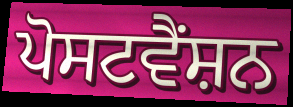
ਪੋਸਟਵੈਂਸ਼ਨ